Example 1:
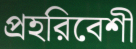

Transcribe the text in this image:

প্রহরিবেশী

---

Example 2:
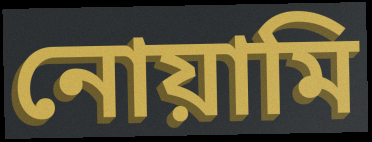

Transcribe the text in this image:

নোয়ামি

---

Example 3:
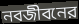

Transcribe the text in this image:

নবজীবনের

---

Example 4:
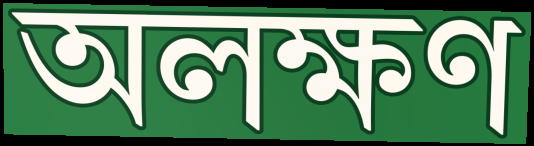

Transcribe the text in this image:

অলক্ষণ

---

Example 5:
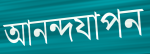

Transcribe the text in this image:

আনন্দযাপন